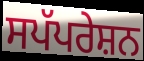
ਸਪੱਪਰੇਸ਼ਨ